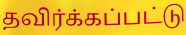
தவிர்க்கப்பட்டு